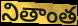
నితాంత